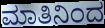
ಮಾತಿನಿಂದ